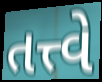
તત્ત્વે